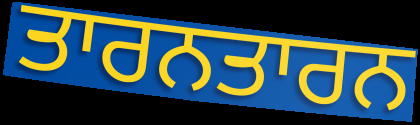
ਤਾਰਨਤਾਰਨ